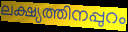
ലക്ഷ്യത്തിനപ്പുറം